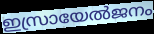
ഇസ്രായേൽജനം